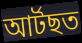
আৰ্টছত